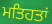
ਮਤਿਹਤਾਂ